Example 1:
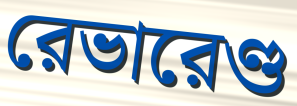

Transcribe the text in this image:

রেভারেণ্ড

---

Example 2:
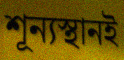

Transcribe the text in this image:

শূন্যস্থানই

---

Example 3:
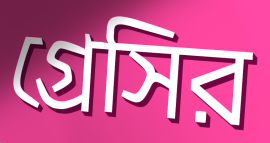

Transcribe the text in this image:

গ্রেসির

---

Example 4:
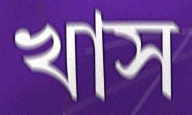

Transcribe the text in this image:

খাস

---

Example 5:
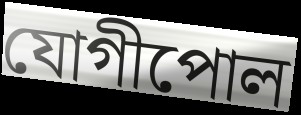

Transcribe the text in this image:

যোগীপোল